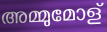
അമ്മുമോള്